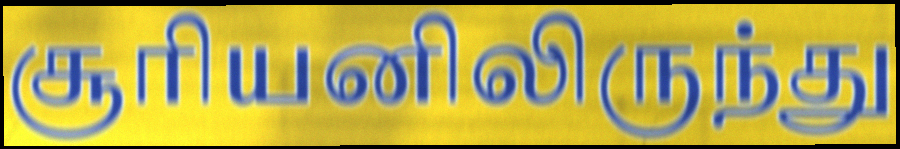
சூரியனிலிருந்து